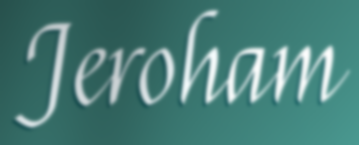
Jeroham